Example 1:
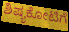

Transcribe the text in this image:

ಶಿಷ್ಯಕೋಟಿಗೆ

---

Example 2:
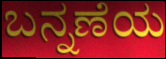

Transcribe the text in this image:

ಬನ್ನಣೆಯ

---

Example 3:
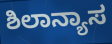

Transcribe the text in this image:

ಶಿಲಾನ್ಯಾಸ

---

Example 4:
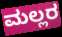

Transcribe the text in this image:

ಮಲ್ಲರ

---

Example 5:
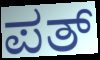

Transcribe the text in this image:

ಪತ್